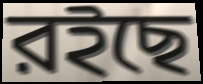
রইছে